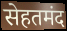
सेहतमंद